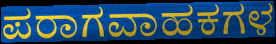
ಪರಾಗವಾಹಕಗಳ